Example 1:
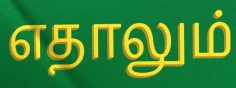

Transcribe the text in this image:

எதாலும்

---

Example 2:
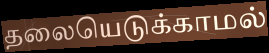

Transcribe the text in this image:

தலையெடுக்காமல்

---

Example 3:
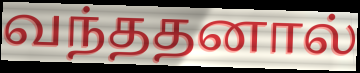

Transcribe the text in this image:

வந்ததனால்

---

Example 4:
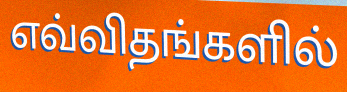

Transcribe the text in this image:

எவ்விதங்களில்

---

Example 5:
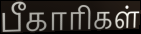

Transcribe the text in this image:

பீகாரிகள்